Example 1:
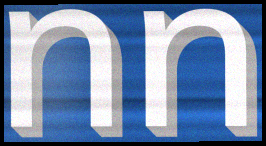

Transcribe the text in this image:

nn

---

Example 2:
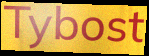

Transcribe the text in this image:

Tybost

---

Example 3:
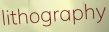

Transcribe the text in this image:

lithography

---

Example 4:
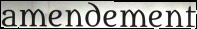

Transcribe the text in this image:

amendement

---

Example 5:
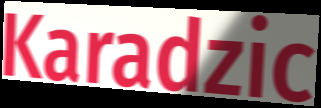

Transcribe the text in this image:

Karadzic